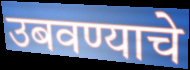
उबवण्याचे